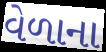
વેળાના